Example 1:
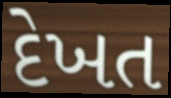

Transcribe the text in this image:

દેખત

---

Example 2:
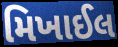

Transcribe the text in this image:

મિખાઈલ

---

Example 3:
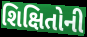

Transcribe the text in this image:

શિક્ષિતોની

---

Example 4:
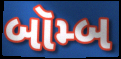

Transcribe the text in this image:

બૉમ્બ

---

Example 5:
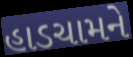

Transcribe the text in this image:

હાડચામને